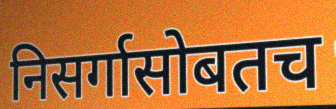
निसर्गासोबतच